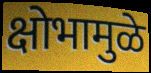
क्षोभामुळे